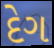
દેગ